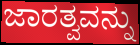
ಜಾರತ್ವವನ್ನು